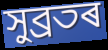
সুব্ৰতৰ